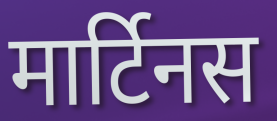
मार्टिनस